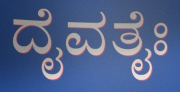
ದೈವತೈಃ